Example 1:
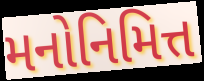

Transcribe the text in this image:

મનોનિમિત્ત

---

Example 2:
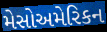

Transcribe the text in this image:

મેસોઅમેરિકન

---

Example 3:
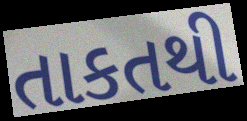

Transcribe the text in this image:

તાકતથી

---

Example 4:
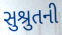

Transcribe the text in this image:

સુશ્રુતની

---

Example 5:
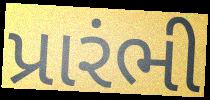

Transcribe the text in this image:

પ્રારંભી